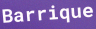
Barrique